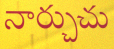
నార్చుచు